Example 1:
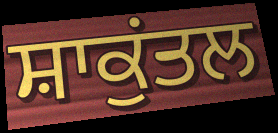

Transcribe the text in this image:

ਸ਼ਾਕੁਂਤਲ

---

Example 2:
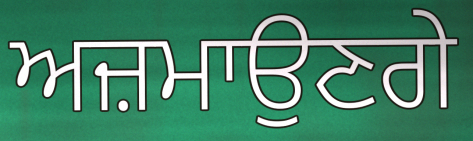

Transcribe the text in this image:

ਅਜ਼ਮਾਉਣਗੇ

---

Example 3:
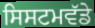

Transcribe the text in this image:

ਸਿਸਟਮਵੱਡੇ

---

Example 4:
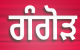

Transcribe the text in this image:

ਗੰਗੋੜ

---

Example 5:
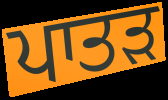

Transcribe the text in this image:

ਪਾਤੜ